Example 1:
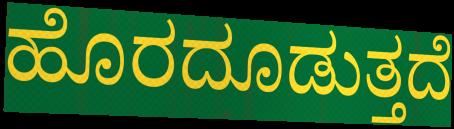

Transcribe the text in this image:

ಹೊರದೂಡುತ್ತದೆ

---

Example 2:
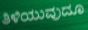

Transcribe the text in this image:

ತಿಳಿಯುವುದೂ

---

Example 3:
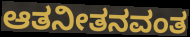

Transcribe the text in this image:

ಆತನೀತನವಂತ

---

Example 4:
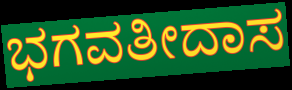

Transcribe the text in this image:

ಭಗವತೀದಾಸ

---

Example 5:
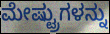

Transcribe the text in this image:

ಮೇಷ್ಟ್ರುಗಳನ್ನು